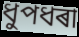
ধুপধৰা